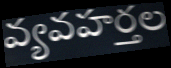
వ్యవహర్తల